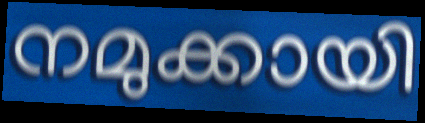
നമുക്കായി